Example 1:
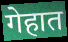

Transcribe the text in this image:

गेहात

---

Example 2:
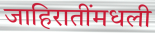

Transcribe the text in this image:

जाहिरातींमधली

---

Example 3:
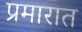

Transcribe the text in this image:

प्रमारात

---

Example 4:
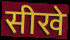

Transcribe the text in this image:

सीखे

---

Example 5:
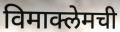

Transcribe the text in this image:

विमाक्लेमची